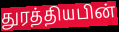
துரத்தியபின்